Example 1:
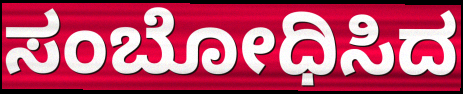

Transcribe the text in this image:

ಸಂಬೋಧಿಸಿದ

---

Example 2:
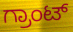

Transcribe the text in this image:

ಗ್ರಾಂಟ್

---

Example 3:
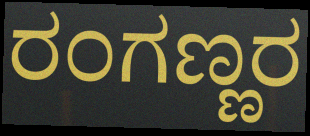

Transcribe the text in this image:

ರಂಗಣ್ಣರ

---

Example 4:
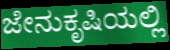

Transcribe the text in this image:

ಜೇನುಕೃಷಿಯಲ್ಲಿ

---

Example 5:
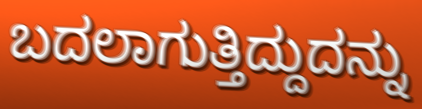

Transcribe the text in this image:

ಬದಲಾಗುತ್ತಿದ್ದುದನ್ನು